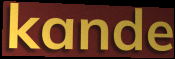
kande